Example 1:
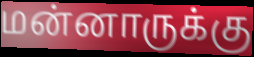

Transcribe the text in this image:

மன்னாருக்கு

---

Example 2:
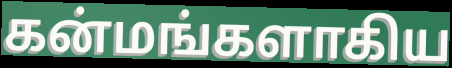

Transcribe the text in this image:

கன்மங்களாகிய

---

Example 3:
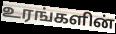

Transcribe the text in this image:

உரங்களின்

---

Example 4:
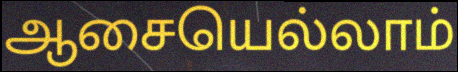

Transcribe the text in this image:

ஆசையெல்லாம்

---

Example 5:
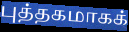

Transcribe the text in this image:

புத்தகமாகக்